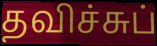
தவிச்சுப்